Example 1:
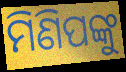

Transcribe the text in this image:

ମିଣିପଙ୍କୁ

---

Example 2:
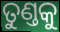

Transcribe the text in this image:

ତୁଣ୍ତକୁ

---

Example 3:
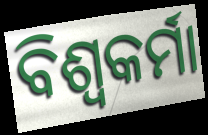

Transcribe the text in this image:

ବିଶ୍ବକର୍ମା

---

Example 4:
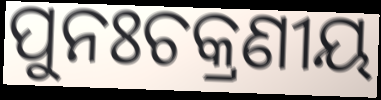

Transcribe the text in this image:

ପୁନଃଚକ୍ରଣୀୟ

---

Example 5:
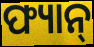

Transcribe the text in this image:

ଫ୍ୟାନ୍